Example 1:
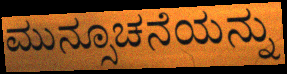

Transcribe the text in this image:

ಮುನ್ಸೂಚನೆಯನ್ನು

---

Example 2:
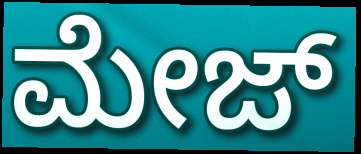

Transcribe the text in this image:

ಮೇಜ್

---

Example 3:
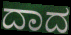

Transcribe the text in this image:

ದಾದ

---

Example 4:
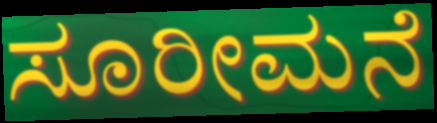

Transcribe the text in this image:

ಸೂರೀಮನೆ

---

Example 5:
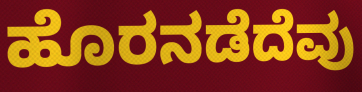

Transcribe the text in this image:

ಹೊರನಡೆದೆವು